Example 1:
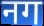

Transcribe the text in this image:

नग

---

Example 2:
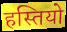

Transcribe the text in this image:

हस्तियो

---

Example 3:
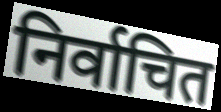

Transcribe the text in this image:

निर्वाचित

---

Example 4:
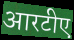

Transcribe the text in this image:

आरटीए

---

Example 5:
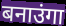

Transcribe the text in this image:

बनाउंगा